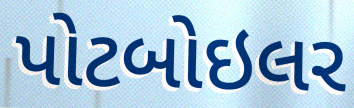
પોટબોઇલર